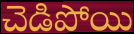
చెడిపోయి